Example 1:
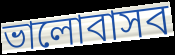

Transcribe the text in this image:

ভালোবাসব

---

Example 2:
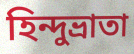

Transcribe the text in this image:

হিন্দুভ্রাতা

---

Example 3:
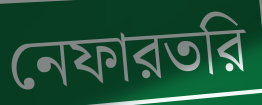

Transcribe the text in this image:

নেফারতরি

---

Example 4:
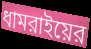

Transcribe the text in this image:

ধামরাইয়ের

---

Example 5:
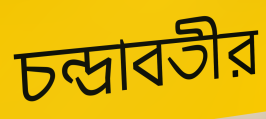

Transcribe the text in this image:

চন্দ্রাবতীর